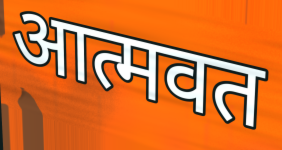
आत्मवत